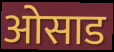
ओसाड